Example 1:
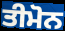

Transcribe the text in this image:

ਤੀਮੋਨ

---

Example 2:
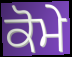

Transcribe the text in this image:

ਕੋਮੇ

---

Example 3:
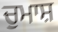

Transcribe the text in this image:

ਚੁਮਾਸ਼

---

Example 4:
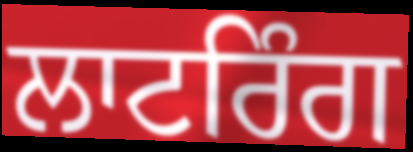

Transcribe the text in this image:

ਲਾਟਰਿੰਗ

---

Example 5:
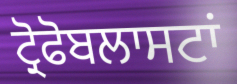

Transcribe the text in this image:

ਟ੍ਰੋਫੋਬਲਾਸਟਾਂ